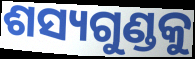
ଶସ୍ୟଗୁଣ୍ଡକୁ